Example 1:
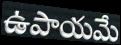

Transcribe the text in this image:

ఉపాయమే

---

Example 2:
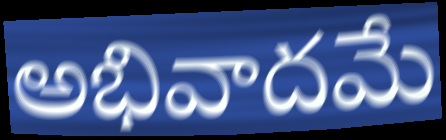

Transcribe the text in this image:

అభివాదమే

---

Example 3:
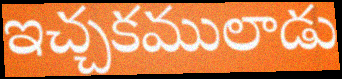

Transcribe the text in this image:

ఇచ్చకములాడు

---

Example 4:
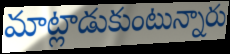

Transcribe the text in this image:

మాట్లాడుకుంటున్నారు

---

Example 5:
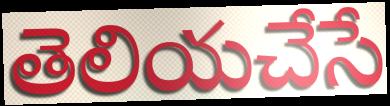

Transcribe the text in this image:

తెలియచేసే